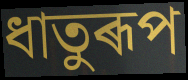
ধাতুৰূপ